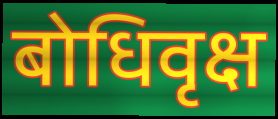
बोधिवृक्ष